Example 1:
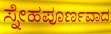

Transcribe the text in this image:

ಸ್ನೇಹಪೂರ್ಣವಾದ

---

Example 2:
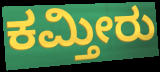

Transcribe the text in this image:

ಕಮ್ತೀರು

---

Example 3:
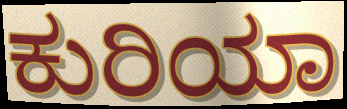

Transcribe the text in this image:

ಕುರಿಯಾ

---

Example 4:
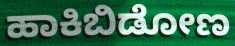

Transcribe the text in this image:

ಹಾಕಿಬಿಡೋಣ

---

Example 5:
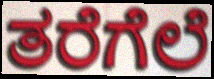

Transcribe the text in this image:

ತರೆಗೆಲೆ